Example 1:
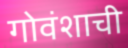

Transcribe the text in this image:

गोवंशाची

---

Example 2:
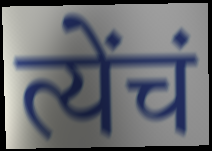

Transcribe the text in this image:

त्येंचं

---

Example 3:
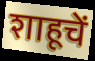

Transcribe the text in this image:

शाहूचें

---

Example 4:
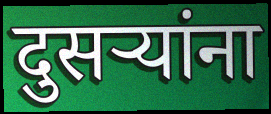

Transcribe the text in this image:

दुसर्‍यांना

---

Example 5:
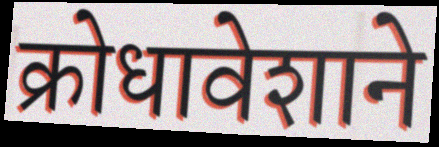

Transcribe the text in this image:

क्रोधावेशाने